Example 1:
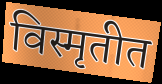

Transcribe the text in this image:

विस्मृतीत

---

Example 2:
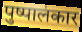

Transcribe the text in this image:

पुष्पालंकार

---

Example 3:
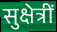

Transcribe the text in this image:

सुक्षेत्रीं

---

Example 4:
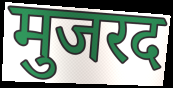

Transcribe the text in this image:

मुजरद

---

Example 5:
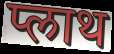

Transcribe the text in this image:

प्लाथ